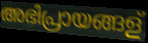
അഭിപ്രായങ്ങള്